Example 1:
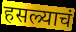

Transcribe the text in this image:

हसल्याचं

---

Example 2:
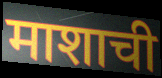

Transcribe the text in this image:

माशाची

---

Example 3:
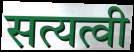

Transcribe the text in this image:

सत्यत्वी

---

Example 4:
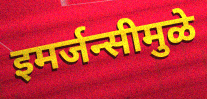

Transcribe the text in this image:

इमर्जन्सीमुळे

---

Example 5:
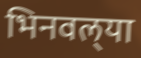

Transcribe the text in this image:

भिनवल्या